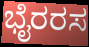
ಭೈರರಸ